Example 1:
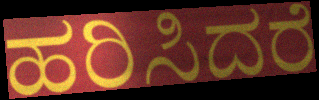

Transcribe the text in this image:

ಹರಿಸಿದರೆ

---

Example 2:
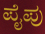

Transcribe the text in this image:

ಪೈಪು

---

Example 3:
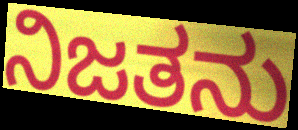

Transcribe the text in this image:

ನಿಜತನು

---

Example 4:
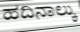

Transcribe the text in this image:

ಹದಿನಾಲ್ಕು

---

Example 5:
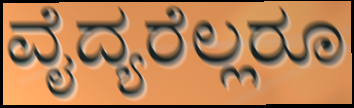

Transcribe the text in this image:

ವೈದ್ಯರೆಲ್ಲರೂ